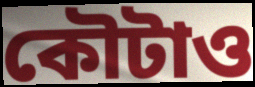
কৌটাও